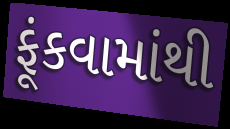
ફૂંકવામાંથી